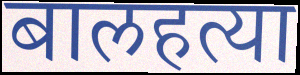
बालहत्या